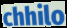
chhilo